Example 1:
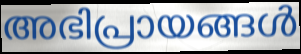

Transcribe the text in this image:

അഭിപ്രായങ്ങൾ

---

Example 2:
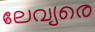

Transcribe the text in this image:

ലേവ്യരെ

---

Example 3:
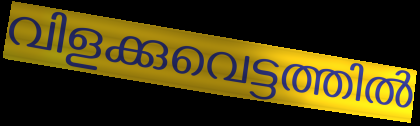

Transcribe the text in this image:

വിളക്കുവെട്ടത്തിൽ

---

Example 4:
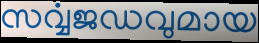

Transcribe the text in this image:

സൎവ്വജഡവുമായ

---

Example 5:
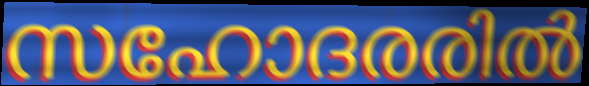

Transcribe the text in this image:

സഹോദരരിൽ